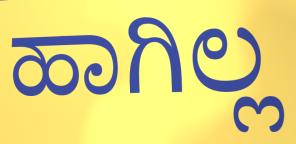
ಹಾಗಿಲ್ಲ